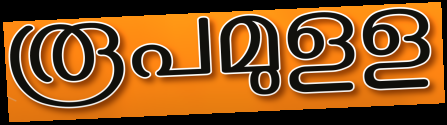
രൂപമുളള